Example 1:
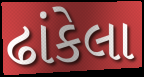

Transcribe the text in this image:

ઢાંકેલા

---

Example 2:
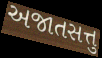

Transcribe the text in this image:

અજાતસત્તુ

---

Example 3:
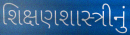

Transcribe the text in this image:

શિક્ષણશાસ્ત્રીનું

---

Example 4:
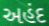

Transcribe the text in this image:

અહંદ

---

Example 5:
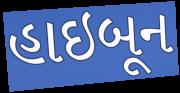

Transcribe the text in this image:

હાઇબૂન